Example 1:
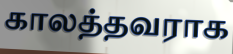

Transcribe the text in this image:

காலத்தவராக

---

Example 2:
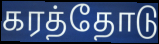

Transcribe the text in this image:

கரத்தோடு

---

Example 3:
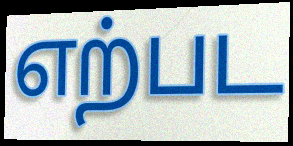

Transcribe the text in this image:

எற்பட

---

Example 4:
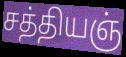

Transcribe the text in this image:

சத்தியஞ்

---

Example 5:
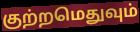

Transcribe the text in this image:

குற்றமெதுவும்